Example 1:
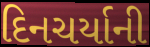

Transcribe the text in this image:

દિનચર્યાની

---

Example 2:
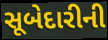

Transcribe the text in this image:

સૂબેદારીની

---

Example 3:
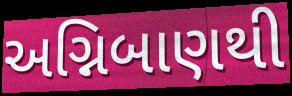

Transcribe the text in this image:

અગ્નિબાણથી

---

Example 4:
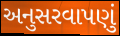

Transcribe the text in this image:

અનુસરવાપણું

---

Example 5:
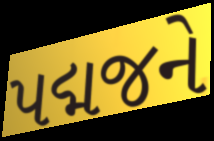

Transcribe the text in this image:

પદ્મજને